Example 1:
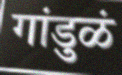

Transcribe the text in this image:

गांडुळं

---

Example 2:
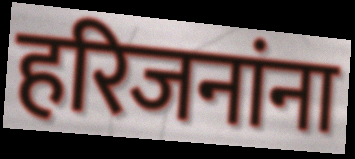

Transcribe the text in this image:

हरिजनांना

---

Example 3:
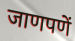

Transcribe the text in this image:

जाणपणें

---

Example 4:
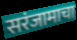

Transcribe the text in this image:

सरंजामाचा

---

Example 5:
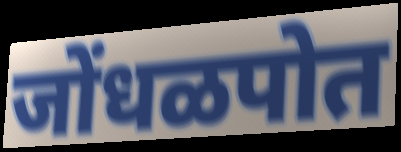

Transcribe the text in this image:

जोंधळपोत